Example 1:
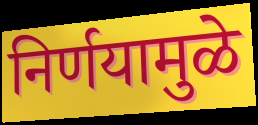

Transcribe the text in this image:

निर्णयामुळे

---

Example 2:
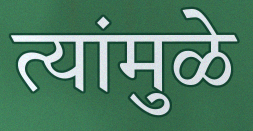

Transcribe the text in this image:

त्यांमुळे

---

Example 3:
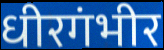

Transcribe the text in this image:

धीरगंभीर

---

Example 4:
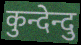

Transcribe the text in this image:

कुन्देन्दु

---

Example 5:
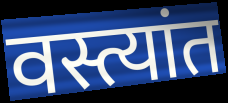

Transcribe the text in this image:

वस्त्यांत